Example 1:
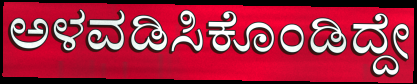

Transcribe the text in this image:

ಅಳವಡಿಸಿಕೊಂಡಿದ್ದೇ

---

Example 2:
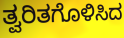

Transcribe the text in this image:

ತ್ವರಿತಗೊಳಿಸಿದ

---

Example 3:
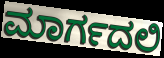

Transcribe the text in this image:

ಮಾರ್ಗದಲಿ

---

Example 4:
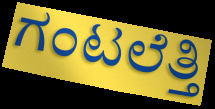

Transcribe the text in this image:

ಗಂಟಲೆತ್ತಿ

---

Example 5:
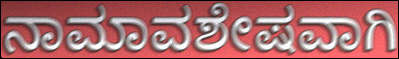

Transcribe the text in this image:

ನಾಮಾವಶೇಷವಾಗಿ